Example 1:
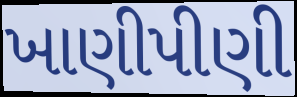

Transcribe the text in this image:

ખાણીપીણી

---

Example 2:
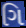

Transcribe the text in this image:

ગિ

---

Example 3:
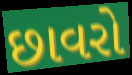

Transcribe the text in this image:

છાવરો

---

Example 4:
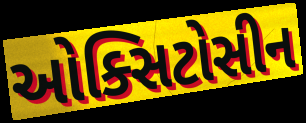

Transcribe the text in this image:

ઓક્સિટોસીન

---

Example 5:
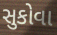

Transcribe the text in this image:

સુકોવા